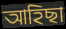
আহিছা